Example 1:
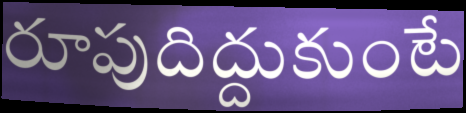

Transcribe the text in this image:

రూపుదిద్దుకుంటే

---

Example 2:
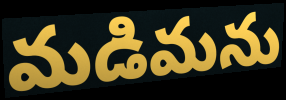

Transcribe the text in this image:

మడిమను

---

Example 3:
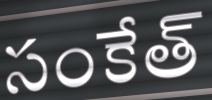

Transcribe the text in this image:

సంకేత్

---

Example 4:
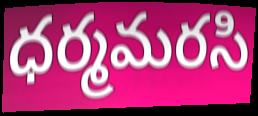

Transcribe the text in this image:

ధర్మమరసి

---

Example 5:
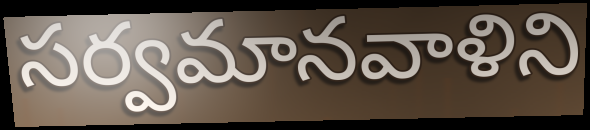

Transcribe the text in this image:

సర్వమానవాళిని